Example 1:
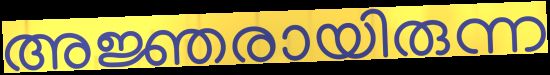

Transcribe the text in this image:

അജ്ഞരായിരുന്ന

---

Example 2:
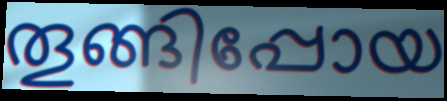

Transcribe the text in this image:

തൂങ്ങിപ്പോയ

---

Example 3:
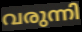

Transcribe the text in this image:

വരുന്നി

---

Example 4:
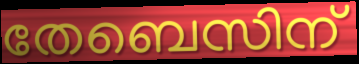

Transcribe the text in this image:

തേബെസിന്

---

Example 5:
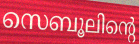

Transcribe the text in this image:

സെബൂലിന്റെ